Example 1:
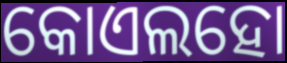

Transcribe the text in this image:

କୋଏଲହୋ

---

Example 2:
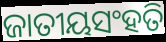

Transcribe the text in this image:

ଜାତୀୟସଂହତି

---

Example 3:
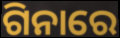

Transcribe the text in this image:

ଗିନାରେ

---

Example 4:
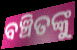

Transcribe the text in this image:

ବଞ୍ଚିତଙ୍କୁ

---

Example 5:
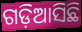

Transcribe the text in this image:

ଗଡ଼ିଆସିଛି